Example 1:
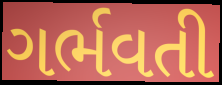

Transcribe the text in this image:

ગર્ભવતી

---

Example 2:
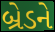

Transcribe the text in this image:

બ્રેડને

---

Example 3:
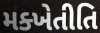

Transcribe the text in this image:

મક્ખેતીતિ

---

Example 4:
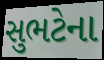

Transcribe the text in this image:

સુભટેના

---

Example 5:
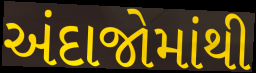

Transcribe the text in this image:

અંદાજોમાંથી